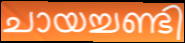
ചായച്ചണ്ടി